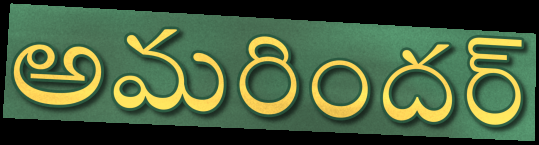
అమరిందర్